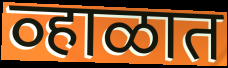
व्हाळात